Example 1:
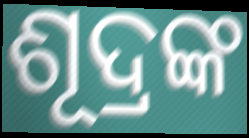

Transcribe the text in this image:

ଶୂଦ୍ରଙ୍କ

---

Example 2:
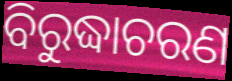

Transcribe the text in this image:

ବିରୁଦ୍ଧାଚରଣ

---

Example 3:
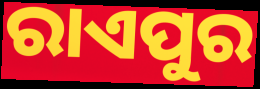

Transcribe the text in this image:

ରାଏପୁର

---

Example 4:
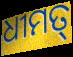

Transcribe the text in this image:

ଧୀମତ୍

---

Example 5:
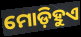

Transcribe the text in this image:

ମୋଡ଼ିହୁଏ